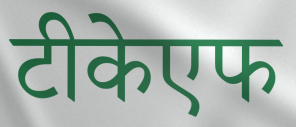
टीकेएफ